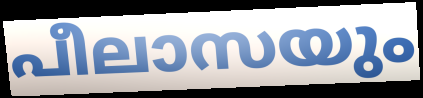
പീലാസയും